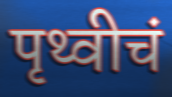
पृथ्वीचं